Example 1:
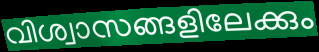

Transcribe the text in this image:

വിശ്വാസങ്ങളിലേക്കും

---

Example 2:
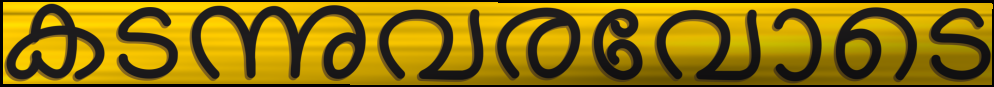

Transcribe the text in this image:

കടന്നുവരവോടെ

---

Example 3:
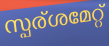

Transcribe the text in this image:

സ്പര്ശമേറ്റ്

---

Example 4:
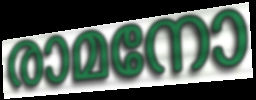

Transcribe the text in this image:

രാമനോ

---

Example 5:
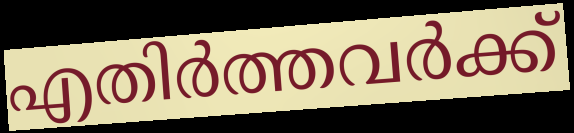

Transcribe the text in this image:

എതിർത്തവർക്ക്